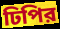
ঢিপির